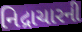
નિદ્રાચારની